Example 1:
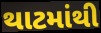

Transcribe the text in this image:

થાટમાંથી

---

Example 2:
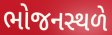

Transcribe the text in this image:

ભોજનસ્થળે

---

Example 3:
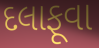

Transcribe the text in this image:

દલાફૂવા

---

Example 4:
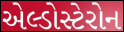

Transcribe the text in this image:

એલ્ડોસ્ટેરોન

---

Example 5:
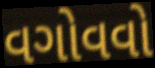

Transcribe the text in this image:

વગોવવો